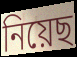
নিয়েছ